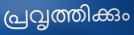
പ്രവൃത്തിക്കും